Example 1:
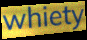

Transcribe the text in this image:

whiety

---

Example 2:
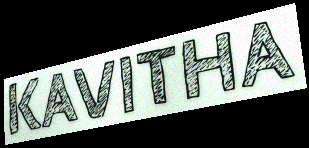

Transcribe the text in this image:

KAVITHA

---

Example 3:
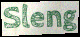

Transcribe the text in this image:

Sleng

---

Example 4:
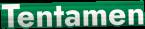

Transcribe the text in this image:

Tentamen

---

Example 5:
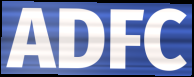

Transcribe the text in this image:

ADFC